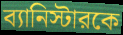
ব্যানিস্টারকে